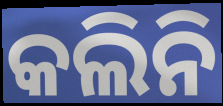
କଲିନି